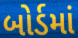
બોર્ડમાં